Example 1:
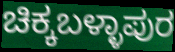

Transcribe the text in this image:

ಚಿಕ್ಕಬಳ್ಳಾಪುರ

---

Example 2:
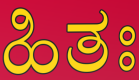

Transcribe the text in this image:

ಹಿತಃ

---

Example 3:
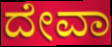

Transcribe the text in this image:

ದೇವಾ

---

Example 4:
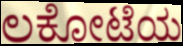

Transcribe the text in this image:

ಲಕೋಟೆಯ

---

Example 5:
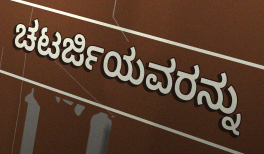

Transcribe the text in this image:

ಚಟರ್ಜಿಯವರನ್ನು